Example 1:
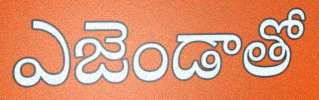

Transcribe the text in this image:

ఎజెండాతో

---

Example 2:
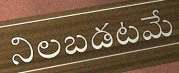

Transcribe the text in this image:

నిలబడటమే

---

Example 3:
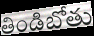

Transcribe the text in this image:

తిండిబోతు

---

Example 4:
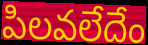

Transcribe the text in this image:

పిలవలేదేం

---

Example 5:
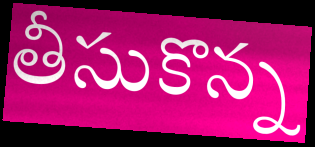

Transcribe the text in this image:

తీసుకొన్న